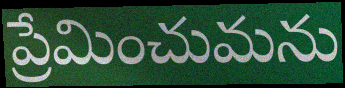
ప్రేమించుమను